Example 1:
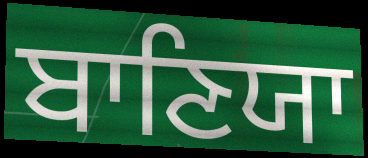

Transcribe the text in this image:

ਬਾਣਿਯਾ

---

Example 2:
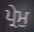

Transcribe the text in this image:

ਪ੍ਰੇਮੁ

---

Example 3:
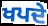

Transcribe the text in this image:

ਖਪਦੇ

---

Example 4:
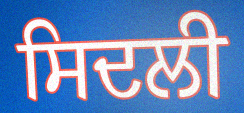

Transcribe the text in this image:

ਸਿਦਲੀ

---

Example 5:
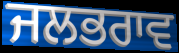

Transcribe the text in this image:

ਜਲਭਰਾਵ